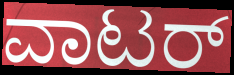
ವಾಟರ್